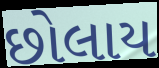
છોલાય